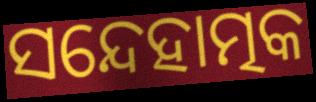
ସନ୍ଦେହାତ୍ମକ